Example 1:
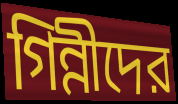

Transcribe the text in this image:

গিন্নীদের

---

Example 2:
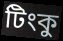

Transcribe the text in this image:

টিংকু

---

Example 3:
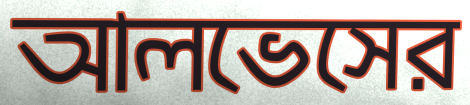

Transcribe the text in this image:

আলভেসের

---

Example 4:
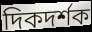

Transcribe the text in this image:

দিকদর্শক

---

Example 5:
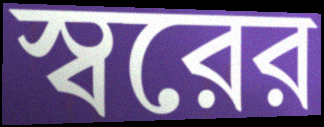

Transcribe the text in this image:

স্বরের